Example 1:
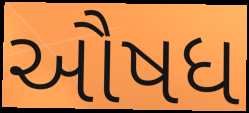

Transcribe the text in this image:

ઔષધ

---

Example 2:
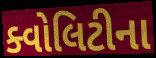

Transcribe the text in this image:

ક્વોલિટીના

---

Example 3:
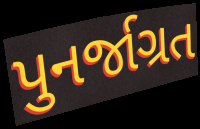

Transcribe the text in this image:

પુનર્જાગ્રત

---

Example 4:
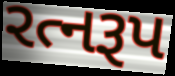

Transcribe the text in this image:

રત્નરૂપ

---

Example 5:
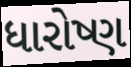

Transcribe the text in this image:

ધારોષ્ણ